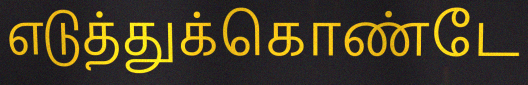
எடுத்துக்கொண்டே